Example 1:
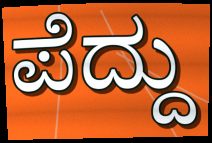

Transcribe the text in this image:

ಪೆದ್ದು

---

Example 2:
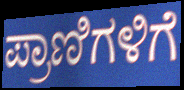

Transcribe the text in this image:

ಪ್ರಾಣಿಗಳಿಗೆ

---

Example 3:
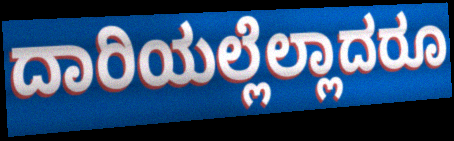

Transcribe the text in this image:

ದಾರಿಯಲ್ಲೆಲ್ಲಾದರೂ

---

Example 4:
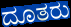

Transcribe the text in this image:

ದೂತರು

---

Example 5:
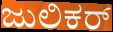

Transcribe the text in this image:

ಜುಲಿಕರ್